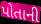
પોતાની